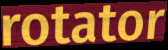
rotator